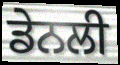
ਡੇਨਲੀ